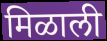
मिळाली